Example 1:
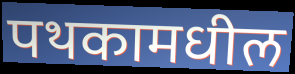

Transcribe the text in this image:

पथकामधील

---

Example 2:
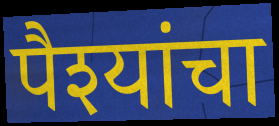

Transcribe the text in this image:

पैश्यांचा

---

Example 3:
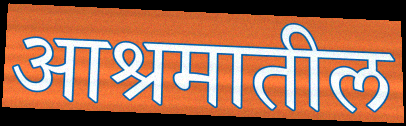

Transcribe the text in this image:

आश्रमातील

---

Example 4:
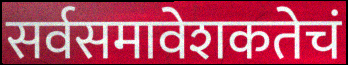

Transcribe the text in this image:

सर्वसमावेशकतेचं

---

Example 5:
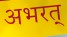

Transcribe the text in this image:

अभरत्